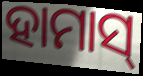
ହାମାସ୍